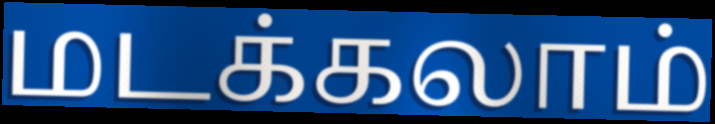
மடக்கலாம்